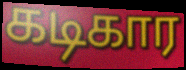
கடிகார